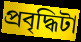
প্রবৃদ্ধিটা